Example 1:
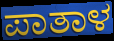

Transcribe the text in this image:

ಪಾತಾಳ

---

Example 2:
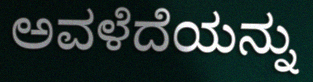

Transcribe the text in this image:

ಅವಳೆದೆಯನ್ನು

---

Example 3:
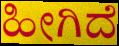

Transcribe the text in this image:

ಹೀಗಿದೆ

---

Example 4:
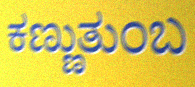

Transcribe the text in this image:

ಕಣ್ಣುತುಂಬ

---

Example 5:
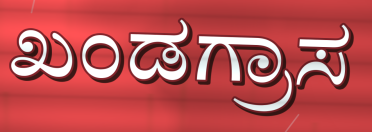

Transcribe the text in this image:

ಖಂಡಗ್ರಾಸ